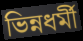
ভিন্নধৰ্মী